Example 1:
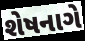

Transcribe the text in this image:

શેષનાગે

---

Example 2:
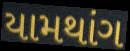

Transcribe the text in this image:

યામથાંગ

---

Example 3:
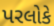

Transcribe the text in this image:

પરલોકે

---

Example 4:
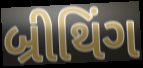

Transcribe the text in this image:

બ્રીથિંગ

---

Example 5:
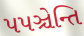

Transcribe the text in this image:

પપઞ્ચેન્તિ